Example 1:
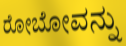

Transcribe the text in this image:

ರೋಬೋವನ್ನು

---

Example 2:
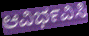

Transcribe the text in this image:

ಆವಿರ್ಭವಿಸಿ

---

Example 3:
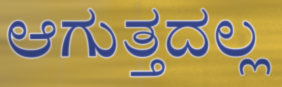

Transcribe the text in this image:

ಆಗುತ್ತದಲ್ಲ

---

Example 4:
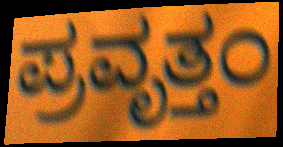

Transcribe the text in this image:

ಪ್ರವೃತ್ತಂ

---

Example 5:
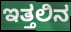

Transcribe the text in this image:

ಇತ್ತಲಿನ